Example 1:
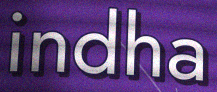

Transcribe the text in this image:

indha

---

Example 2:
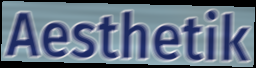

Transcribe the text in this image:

Aesthetik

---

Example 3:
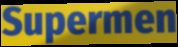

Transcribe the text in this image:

Supermen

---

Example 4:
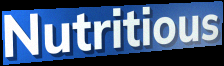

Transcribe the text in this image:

Nutritious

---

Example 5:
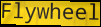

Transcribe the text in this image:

Flywheel